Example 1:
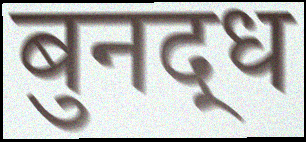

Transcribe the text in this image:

बुनद्ध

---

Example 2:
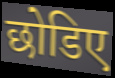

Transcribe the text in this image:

छोडिए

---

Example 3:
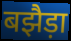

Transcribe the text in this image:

बझैड़ा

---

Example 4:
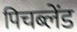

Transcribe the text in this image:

पिचब्लेंड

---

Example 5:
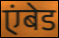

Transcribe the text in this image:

एंबेड